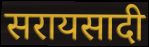
सरायसादी